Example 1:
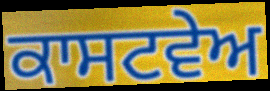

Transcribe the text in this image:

ਕਾਸਟਵੇਅ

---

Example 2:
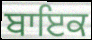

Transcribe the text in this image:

ਬਾਇਕ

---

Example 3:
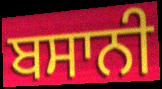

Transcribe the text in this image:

ਬਸਾਨੀ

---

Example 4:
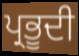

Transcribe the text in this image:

ਪ੍ਰਭੂਦੀ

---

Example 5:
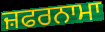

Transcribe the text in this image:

ਜ਼ਫਰਨਾਮਾ